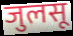
जुलसू